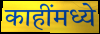
काहींमध्ये